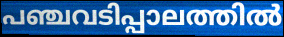
പഞ്ചവടിപ്പാലത്തിൽ